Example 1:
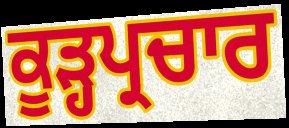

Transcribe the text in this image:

ਕੂੜ੍ਹਪ੍ਰਚਾਰ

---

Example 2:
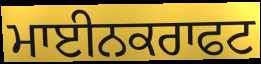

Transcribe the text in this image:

ਮਾਈਨਕਰਾਫਟ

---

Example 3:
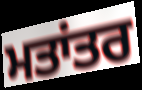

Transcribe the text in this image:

ਮਤਾਂਤਰ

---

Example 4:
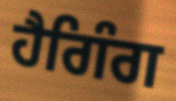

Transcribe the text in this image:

ਹੈਗਿੰਗ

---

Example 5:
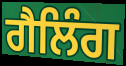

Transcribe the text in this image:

ਗੈਲਿੰਗ